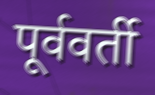
पूर्ववर्ती